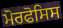
ਮੋਰਫੋਸਿਸ